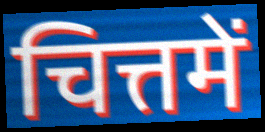
चित्तमें